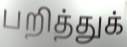
பறித்துக்